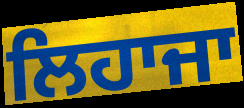
ਲਿਹਾਜਾ